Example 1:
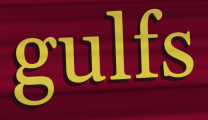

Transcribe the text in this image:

gulfs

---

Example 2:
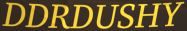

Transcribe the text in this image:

DDRDUSHY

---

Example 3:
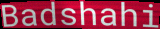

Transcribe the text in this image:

Badshahi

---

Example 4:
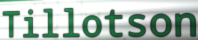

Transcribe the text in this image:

Tillotson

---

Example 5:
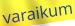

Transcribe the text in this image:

varaikum